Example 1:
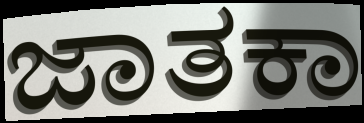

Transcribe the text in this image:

ಜಾತಕಾ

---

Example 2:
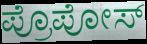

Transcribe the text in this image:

ಪ್ರೊಪೋಸ್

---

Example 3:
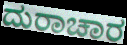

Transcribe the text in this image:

ದುರಾಚಾರ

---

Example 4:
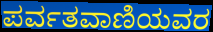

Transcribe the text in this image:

ಪರ್ವತವಾಣಿಯವರ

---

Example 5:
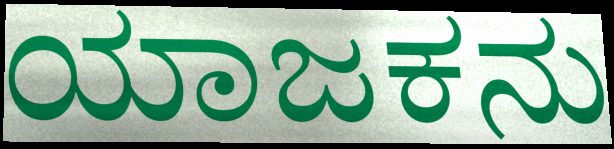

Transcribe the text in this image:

ಯಾಜಕನು